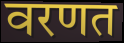
वरणत